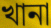
খানা